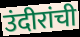
उंदीरांची